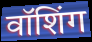
वॉशिंग